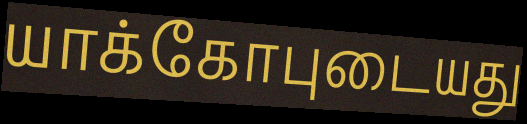
யாக்கோபுடையது